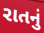
રાતનું